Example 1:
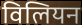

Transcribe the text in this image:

विलियन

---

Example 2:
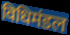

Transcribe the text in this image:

विधिमंडल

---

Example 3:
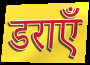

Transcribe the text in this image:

डराएँ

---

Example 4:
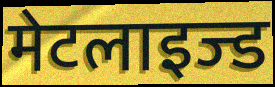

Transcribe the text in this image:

मेटलाइज्ड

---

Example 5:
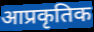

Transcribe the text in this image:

आप्रकृतिक